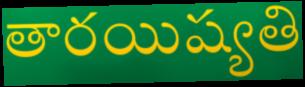
తారయిష్యతి